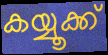
കയ്യൂക്ക്